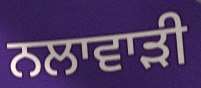
ਨਲਾਵਾੜੀ